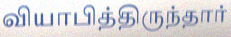
வியாபித்திருந்தார்